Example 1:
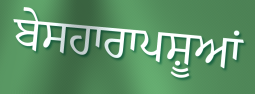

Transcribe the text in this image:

ਬੇਸਹਾਰਾਪਸ਼ੂਆਂ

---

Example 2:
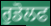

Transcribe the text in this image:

ਰੁਡੋਲਫ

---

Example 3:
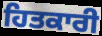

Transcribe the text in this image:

ਹਿਤਕਾਰੀ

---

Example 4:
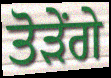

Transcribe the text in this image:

ਤੋੜੇਂਗੇ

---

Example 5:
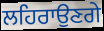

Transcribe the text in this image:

ਲਹਿਰਾਉਣਗੇ